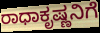
ರಾಧಾಕೃಷ್ಣನಿಗೆ